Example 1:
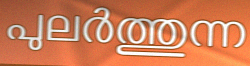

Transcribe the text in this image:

പുലർത്തുന്ന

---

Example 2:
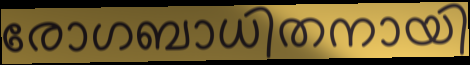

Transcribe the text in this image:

രോഗബാധിതനായി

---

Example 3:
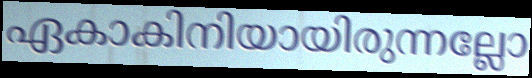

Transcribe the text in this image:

ഏകാകിനിയായിരുന്നല്ലോ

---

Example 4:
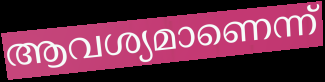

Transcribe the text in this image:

ആവശ്യമാണെന്ന്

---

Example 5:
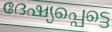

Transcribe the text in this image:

ദേഷ്യപ്പെട്ടെ